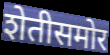
शेतीसमोर